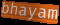
bhayam